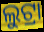
ଲୁଟ୍ରା